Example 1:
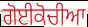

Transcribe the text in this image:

ਗੋਈਕੋਚੀਆ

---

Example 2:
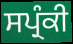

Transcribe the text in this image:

ਸਪ੍ਰੰਕੀ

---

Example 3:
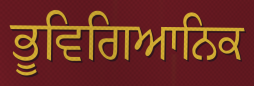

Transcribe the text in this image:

ਭੂਵਿਗਿਆਨਿਕ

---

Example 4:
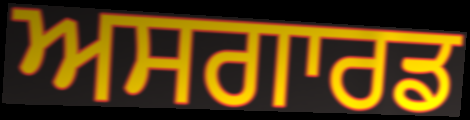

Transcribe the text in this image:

ਅਸਗਾਰਡ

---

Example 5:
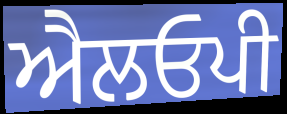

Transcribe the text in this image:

ਐਲਓਪੀ